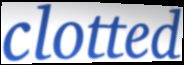
clotted